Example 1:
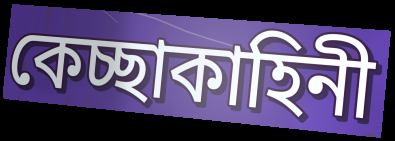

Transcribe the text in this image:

কেচ্ছাকাহিনী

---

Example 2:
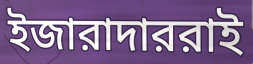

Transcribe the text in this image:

ইজারাদাররাই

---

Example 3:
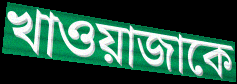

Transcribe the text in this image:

খাওয়াজাকে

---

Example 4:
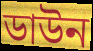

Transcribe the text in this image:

ডাউন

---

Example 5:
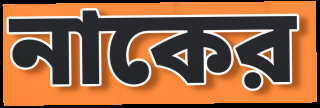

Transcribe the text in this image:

নাকের